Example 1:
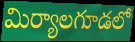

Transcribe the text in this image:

మిర్యాలగూడలో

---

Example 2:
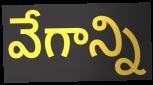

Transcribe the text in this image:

వేగాన్ని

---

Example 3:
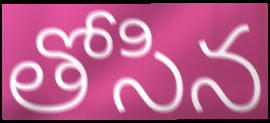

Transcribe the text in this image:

తోసిన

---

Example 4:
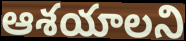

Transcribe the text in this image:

ఆశయాలని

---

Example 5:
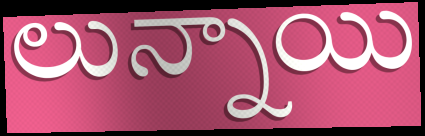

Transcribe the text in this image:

లున్నాయి